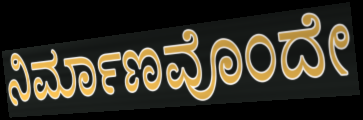
ನಿರ್ಮಾಣವೊಂದೇ